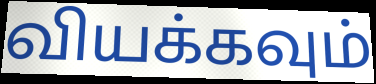
வியக்கவும்